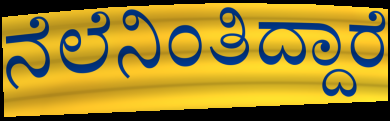
ನೆಲೆನಿಂತಿದ್ದಾರೆ